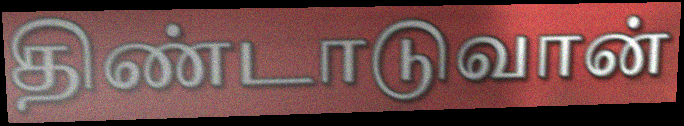
திண்டாடுவான்